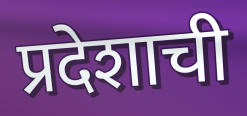
प्रदेशाची